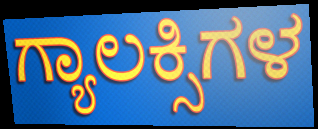
ಗ್ಯಾಲಕ್ಸಿಗಳ